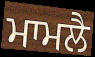
ਮਾਮਲੈ